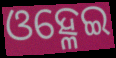
ଓହ୍ଳେଇ